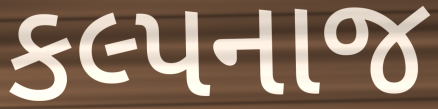
કલ્પનાજ